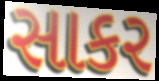
સાકર